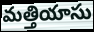
మత్తియాసు